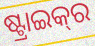
ଷ୍ଟ୍ରାଇକ୍‍ର